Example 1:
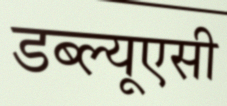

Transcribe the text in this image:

डब्ल्यूएसी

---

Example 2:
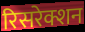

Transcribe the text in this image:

रिसरेक्शन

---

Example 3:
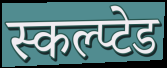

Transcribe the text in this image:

स्कल्प्टेड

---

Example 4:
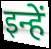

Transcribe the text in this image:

इन्‍हें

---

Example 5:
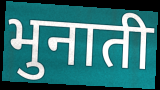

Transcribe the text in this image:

भुनाती